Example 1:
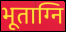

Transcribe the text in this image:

भूताग्नि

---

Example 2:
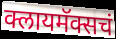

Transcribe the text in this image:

क्लायमॅक्सचं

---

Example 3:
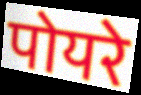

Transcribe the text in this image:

पोयरे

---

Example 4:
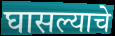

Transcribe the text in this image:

घासल्याचे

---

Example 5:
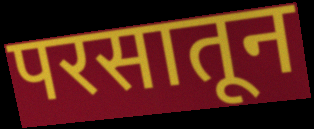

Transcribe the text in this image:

परसातून